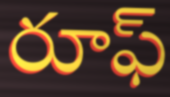
రూఫ్